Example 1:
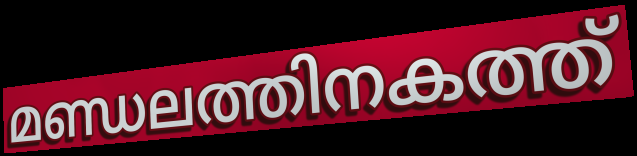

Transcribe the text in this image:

മണ്ഡലത്തിനകത്ത്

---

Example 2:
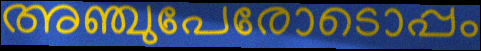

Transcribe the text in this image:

അഞ്ചുപേരോടൊപ്പം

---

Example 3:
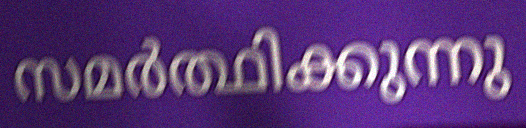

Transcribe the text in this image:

സമർത്ഥിക്കുന്നു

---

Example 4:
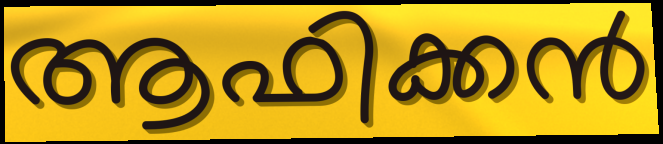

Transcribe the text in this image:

ആഫിക്കൻ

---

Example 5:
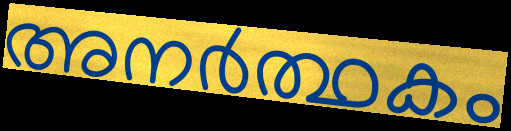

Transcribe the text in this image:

അനർത്ഥകം